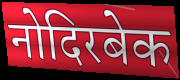
नोदिरबेक